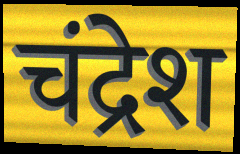
चंद्रेश